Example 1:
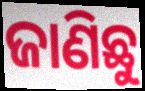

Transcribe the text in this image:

ଜାଣିଛୁ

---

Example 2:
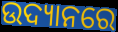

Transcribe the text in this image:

ଉଦ୍ୟାନରେ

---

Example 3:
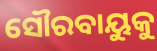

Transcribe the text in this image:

ସୌରବାୟୁକୁ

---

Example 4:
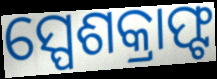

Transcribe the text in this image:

ସ୍ପେଶକ୍ରାଫ୍ଟ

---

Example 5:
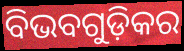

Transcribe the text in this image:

ବିଭବଗୁଡ଼ିକର